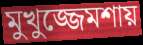
মুখুজ্জেমশায়